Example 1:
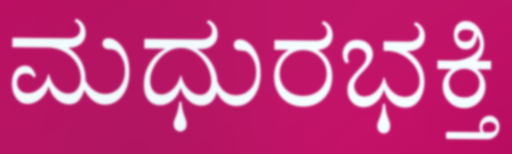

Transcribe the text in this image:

ಮಧುರಭಕ್ತಿ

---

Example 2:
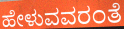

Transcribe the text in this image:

ಹೇಳುವವರಂತೆ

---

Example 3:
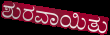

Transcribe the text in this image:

ಶುರವಾಯಿತು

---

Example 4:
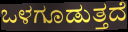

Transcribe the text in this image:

ಒಳಗೂಡುತ್ತದೆ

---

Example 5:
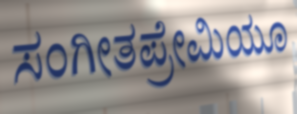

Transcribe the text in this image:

ಸಂಗೀತಪ್ರೇಮಿಯೂ